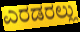
ಎರಡರಲ್ಲು